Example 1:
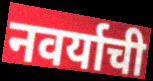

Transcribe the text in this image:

नवर्याची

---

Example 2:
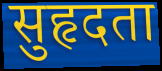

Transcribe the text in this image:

सुहृदता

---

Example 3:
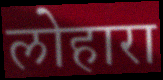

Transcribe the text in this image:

लोहारा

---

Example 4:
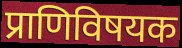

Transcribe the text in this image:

प्राणिविषयक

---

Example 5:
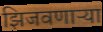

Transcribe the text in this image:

झिजवणाऱ्या